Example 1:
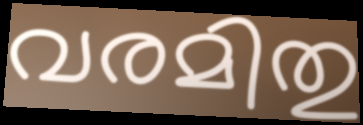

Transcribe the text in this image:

വരമിതു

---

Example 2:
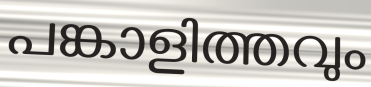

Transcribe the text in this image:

പങ്കാളിത്തവും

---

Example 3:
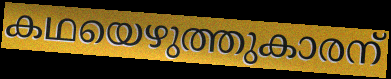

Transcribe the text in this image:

കഥയെഴുത്തുകാരന്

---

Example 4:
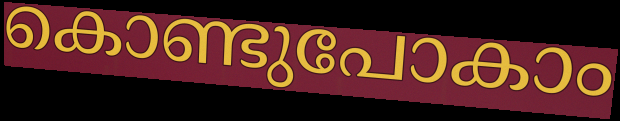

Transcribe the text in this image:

കൊണ്ടുപോകാം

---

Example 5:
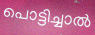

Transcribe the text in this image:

പൊട്ടിച്ചാൽ